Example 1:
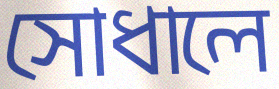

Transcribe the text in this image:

সোধালে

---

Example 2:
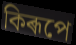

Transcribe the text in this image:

কিৰূপে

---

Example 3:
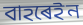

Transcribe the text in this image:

বাহৰেইন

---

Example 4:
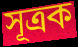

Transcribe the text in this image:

সূত্ৰক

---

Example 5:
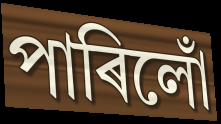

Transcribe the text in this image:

পাৰিলোঁ